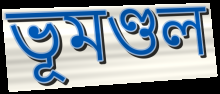
ভূমণ্ডল